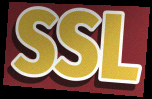
SSL